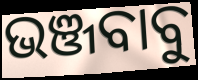
ଭଞ୍ଜବାବୁ